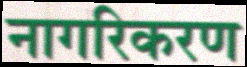
नागरिकरण